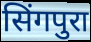
सिंगपुरा